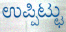
ಉಪ್ಪಿಟ್ಟು